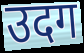
उदग